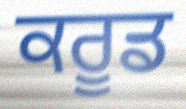
ਕਰੂਡ